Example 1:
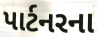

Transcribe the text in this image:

પાર્ટનરના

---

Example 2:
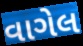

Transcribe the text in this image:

વાગેલ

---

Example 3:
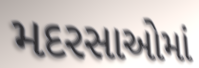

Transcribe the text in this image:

મદરસાઓમાં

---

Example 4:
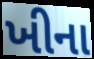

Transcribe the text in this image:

ખીના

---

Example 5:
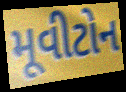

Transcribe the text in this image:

મૂવીટોન